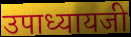
उपाध्यायजी